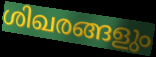
ശിഖരങ്ങളും